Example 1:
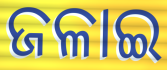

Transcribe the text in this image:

ଜଳାଇ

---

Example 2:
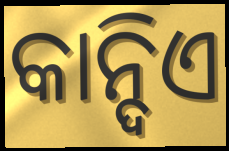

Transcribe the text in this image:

କାନ୍ଦିଏ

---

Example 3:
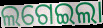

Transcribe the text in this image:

ଲଗେଇଲା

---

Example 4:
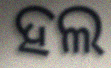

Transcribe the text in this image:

ହଲ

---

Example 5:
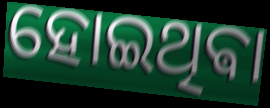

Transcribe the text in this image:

ହୋଇଥିଵା